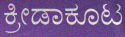
ಕ್ರೀಡಾಕೂಟ